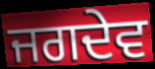
ਜਗਦੇਵ